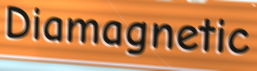
Diamagnetic